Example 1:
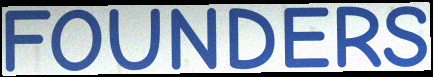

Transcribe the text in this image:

FOUNDERS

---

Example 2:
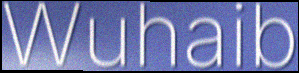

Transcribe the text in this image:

Wuhaib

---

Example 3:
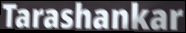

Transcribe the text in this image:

Tarashankar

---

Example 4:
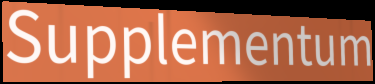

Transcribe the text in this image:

Supplementum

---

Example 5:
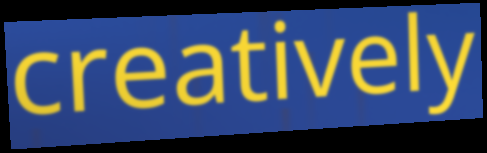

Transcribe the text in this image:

creatively